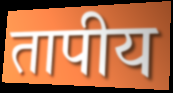
तापीय